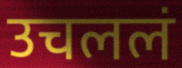
उचललं